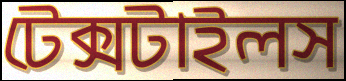
টেক্সটাইলস